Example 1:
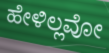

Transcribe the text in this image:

ಹೇಳಿಲ್ಲವೋ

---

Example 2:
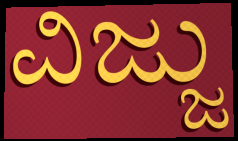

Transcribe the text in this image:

ವಿಜ್ಜು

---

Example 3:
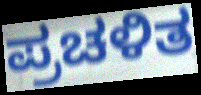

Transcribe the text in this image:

ಪ್ರಚಳಿತ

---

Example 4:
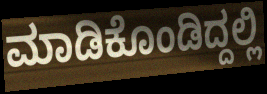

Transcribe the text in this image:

ಮಾಡಿಕೊಂಡಿದ್ದಲ್ಲಿ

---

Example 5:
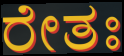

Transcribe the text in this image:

ರೇತಃ